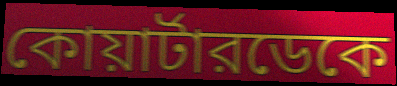
কোয়ার্টারডেকে